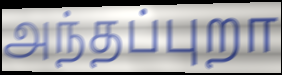
அந்தப்புறா